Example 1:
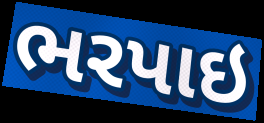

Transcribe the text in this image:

ભરપાઇ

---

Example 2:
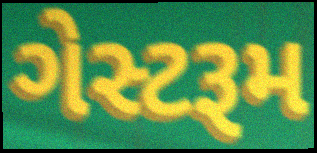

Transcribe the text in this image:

ગેસ્ટરૂમ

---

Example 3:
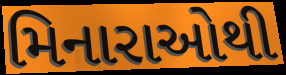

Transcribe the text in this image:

મિનારાઓથી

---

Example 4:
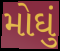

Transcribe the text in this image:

મોઘું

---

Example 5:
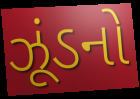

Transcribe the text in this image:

ઝૂંડનો